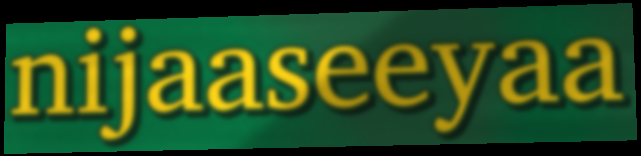
nijaaseeyaa